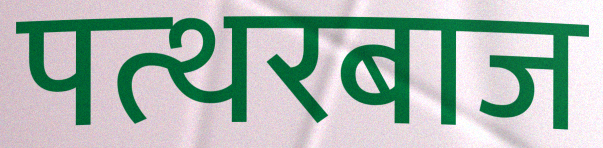
पत्थरबाज